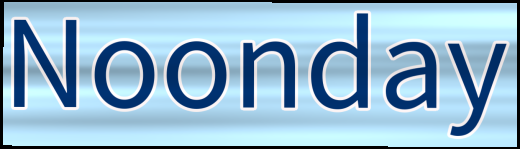
Noonday